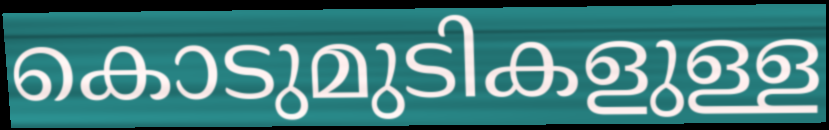
കൊടുമുടികളുള്ള